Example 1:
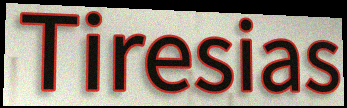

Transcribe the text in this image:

Tiresias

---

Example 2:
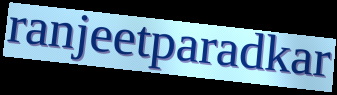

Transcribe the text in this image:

ranjeetparadkar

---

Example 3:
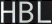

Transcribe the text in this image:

HBL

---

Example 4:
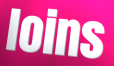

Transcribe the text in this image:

loins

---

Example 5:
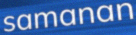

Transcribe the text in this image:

samanan